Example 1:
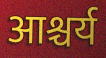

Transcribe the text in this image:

आश्चर्य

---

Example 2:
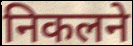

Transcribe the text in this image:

निकलने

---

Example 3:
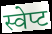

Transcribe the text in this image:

स्वेप्ट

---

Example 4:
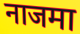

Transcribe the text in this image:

नाजमा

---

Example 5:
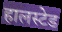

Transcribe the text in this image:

हालस्टेड